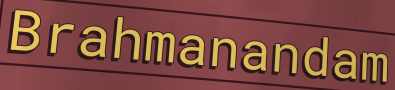
Brahmanandam